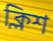
ক্লিশ